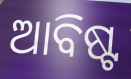
ଆବିଷ୍ଟ